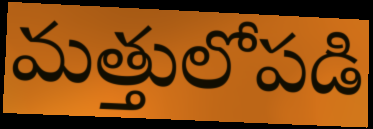
మత్తులోపడి